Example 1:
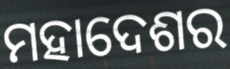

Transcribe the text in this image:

ମହାଦେଶର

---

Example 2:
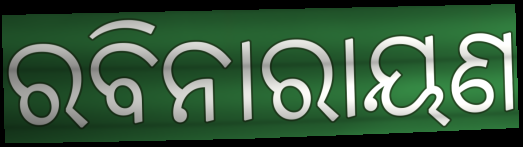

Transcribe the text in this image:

ରବିନାରାୟଣ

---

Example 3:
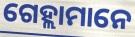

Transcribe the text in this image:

ଗେହ୍ଲାମାନେ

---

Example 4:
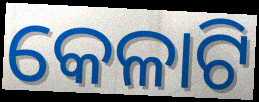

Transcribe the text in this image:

କେଳାଟି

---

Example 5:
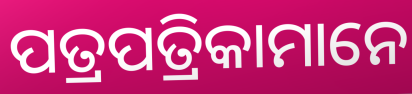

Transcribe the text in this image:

ପତ୍ରପତ୍ରିକାମାନେ